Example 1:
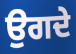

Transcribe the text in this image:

ਉਗਦੇ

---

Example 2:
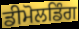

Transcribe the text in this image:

ਡੀਮੋਲਡਿੰਗ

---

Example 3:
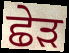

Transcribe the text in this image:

ਛੇੜ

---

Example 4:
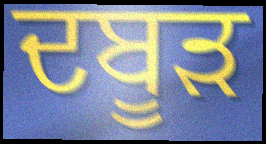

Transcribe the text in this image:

ਦਬੂੜ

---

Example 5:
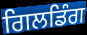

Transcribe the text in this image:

ਗਿਲਡਿੰਗ